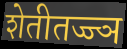
शेतीतज्ज्ञ